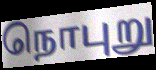
நொபுறு